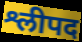
श्लीपद